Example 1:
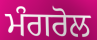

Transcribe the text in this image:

ਮੰਗਰੋਲ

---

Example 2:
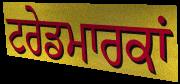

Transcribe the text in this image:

ਟਰੇਡਮਾਰਕਾਂ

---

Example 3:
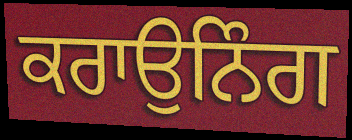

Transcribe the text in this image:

ਕਰਾਉਨਿੰਗ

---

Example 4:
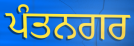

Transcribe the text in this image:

ਪੰਤਨਗਰ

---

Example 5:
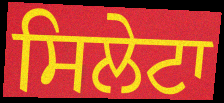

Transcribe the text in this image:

ਸਿਲੇਟਾ